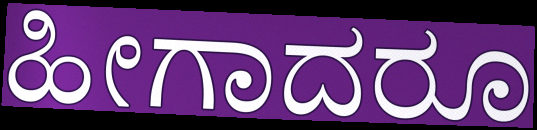
ಹೀಗಾದರೂ